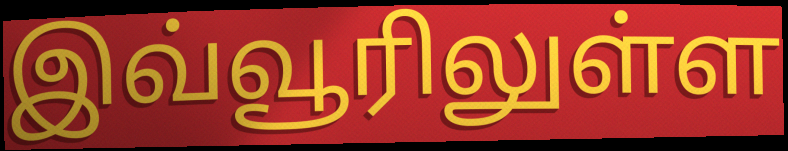
இவ்வூரிலுள்ள